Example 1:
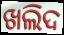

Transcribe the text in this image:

ଖଲିଦ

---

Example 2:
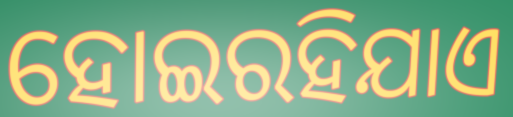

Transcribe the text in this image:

ହୋଇରହିଯାଏ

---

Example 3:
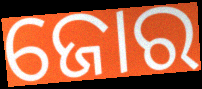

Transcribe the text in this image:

ଜୋର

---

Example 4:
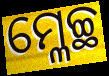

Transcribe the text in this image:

ମ୍ଳେଚ୍ଛ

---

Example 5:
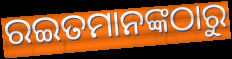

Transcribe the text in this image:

ରଇତମାନଙ୍କଠାରୁ